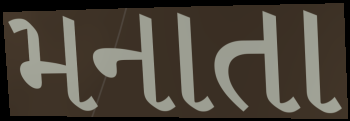
મનાતા